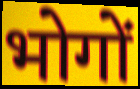
भोगों